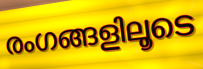
രംഗങ്ങളിലൂടെ